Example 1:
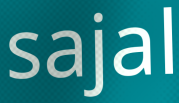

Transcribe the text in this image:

sajal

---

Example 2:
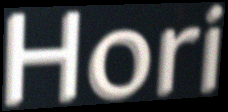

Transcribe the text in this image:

Hori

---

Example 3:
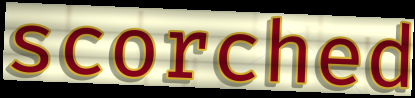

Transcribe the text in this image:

scorched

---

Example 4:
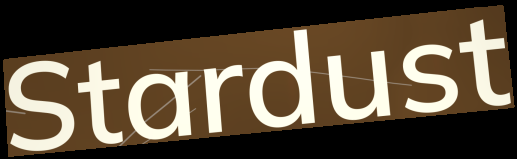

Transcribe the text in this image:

Stardust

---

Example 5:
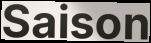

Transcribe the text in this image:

Saison